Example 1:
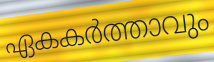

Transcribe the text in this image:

ഏകകർത്താവും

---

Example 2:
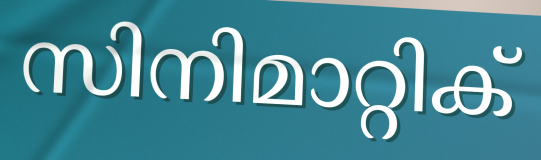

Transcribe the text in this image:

സിനിമാറ്റിക്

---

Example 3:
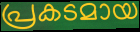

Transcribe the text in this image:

പ്രകടമായ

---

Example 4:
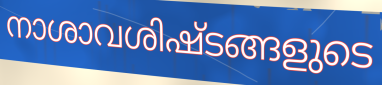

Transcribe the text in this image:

നാശാവശിഷ്ടങ്ങളുടെ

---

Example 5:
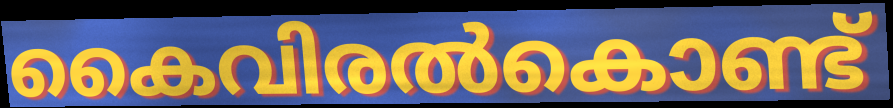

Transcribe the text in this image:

കൈവിരൽകൊണ്ട്